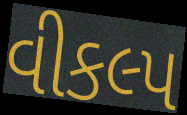
વીકલ્પ